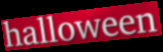
halloween